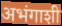
अभंगाशी